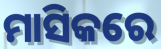
ମାସିକରେ